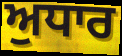
ਅੁਧਾਰ